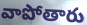
వాపోతారు